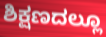
ಶಿಕ್ಷಣದಲ್ಲೂ